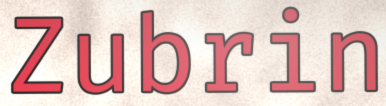
Zubrin